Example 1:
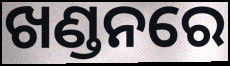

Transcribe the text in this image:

ଖଣ୍ଡନରେ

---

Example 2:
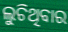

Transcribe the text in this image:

ଲୁଚିଥିବାର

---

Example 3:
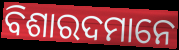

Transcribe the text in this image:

ବିଶାରଦମାନେ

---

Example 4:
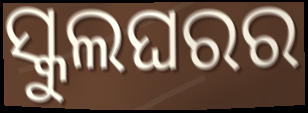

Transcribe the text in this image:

ସ୍କୁଲଘରର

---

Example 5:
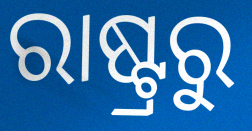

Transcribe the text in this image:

ରାଷ୍ଟ୍ରରୁ